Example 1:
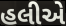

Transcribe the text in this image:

હલીએ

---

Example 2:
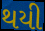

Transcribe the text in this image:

થયી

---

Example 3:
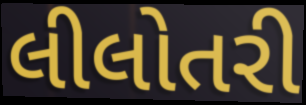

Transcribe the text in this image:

લીલોતરી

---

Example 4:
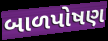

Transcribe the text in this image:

બાળપોષણ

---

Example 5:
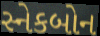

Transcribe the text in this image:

સ્નેકબોન